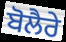
ਬੋਲੈਰੇ